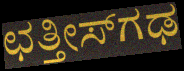
ಛತ್ತೀಸ್‌ಗಢ